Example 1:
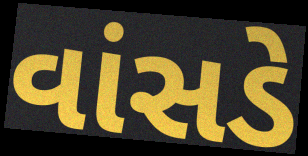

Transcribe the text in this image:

વાંસડે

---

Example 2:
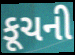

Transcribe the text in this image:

કૂચની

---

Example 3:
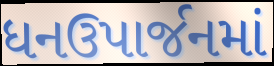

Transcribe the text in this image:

ધનઉપાર્જનમાં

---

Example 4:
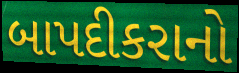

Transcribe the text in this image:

બાપદીકરાનો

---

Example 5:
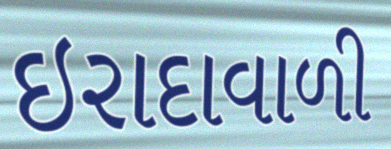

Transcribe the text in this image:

ઇરાદાવાળી